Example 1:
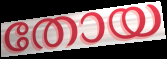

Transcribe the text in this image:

തോയ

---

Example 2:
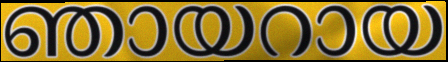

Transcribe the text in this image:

ഞായറായ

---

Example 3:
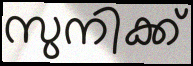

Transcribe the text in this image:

സുനിക്ക്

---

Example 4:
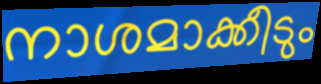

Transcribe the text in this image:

നാശമാക്കീടും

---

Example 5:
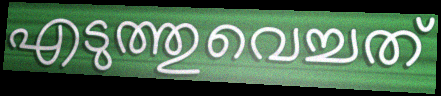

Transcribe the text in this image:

എടുത്തുവെച്ചത്